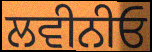
ਲਵੀਨੀਓ